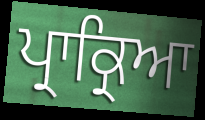
ਪ੍ਰਾਕ੍ਰਿਆ